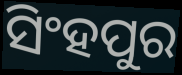
ସିଂହପୁର